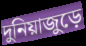
দুনিয়াজুড়ে